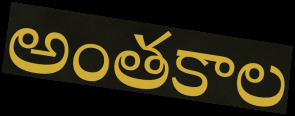
అంతకాల